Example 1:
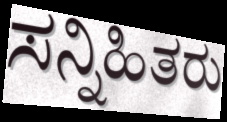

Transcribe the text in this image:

ಸನ್ನಿಹಿತರು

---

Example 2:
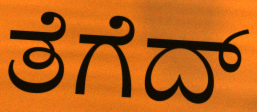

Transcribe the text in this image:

ತೆಗೆದ್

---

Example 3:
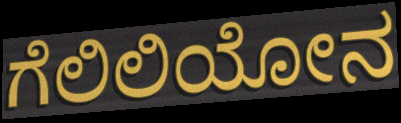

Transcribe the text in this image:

ಗೆಲಿಲಿಯೋನ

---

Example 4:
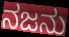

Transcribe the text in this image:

ನಜನು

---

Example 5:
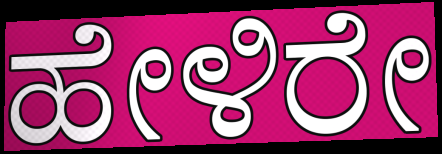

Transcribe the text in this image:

ಹೇಳಿರೇ